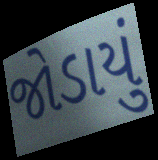
જોડાયું